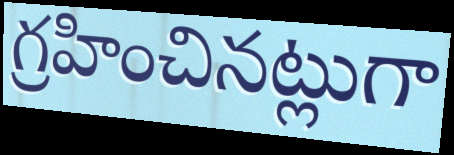
గ్రహించినట్లుగా